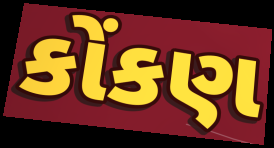
કોંકણ